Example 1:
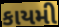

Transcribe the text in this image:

કાયમી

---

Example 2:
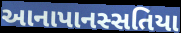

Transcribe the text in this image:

આનાપાનસ્સતિયા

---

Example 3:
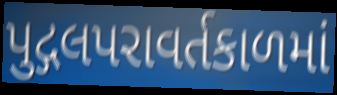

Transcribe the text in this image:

પુદ્ગલપરાવર્તકાળમાં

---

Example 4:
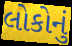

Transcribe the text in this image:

લોકોનું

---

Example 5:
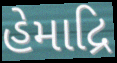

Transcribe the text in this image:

હેમાદ્રિ